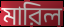
মারিল